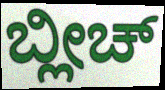
ಬ್ಲೀಚ್